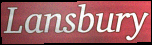
Lansbury